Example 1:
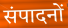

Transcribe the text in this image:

संपादनों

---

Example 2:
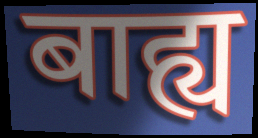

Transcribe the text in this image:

बाह्य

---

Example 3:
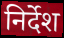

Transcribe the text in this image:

निर्देश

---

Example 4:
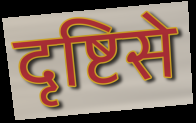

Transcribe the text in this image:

दृष्टिसे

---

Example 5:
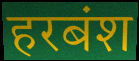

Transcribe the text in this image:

हरबंश